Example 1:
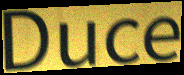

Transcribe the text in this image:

Duce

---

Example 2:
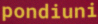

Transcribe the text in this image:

pondiuni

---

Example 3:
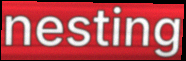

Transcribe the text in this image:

nesting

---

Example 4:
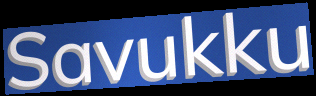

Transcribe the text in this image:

Savukku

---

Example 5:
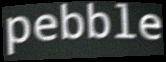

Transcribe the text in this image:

pebble